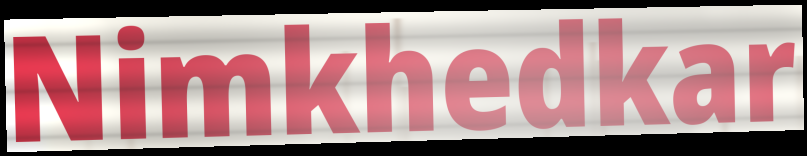
Nimkhedkar